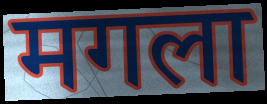
मगला